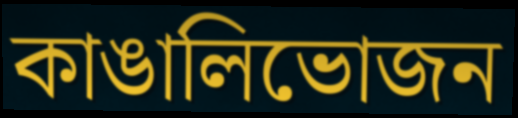
কাঙালিভোজন